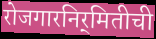
रोजगारनिर्मितीची